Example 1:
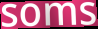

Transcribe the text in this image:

soms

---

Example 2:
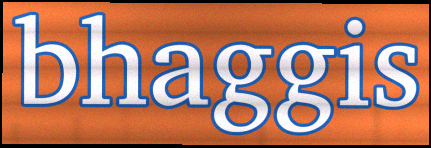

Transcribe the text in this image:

bhaggis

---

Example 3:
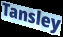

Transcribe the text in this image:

Tansley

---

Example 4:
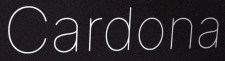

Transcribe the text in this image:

Cardona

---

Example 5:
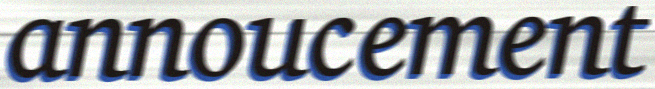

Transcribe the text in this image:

annoucement